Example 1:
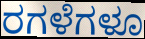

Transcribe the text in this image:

ರಗಳೆಗಳೂ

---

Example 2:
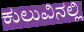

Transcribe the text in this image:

ಕುಲುವಿನಲ್ಲಿ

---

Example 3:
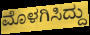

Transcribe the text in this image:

ಮೊಳಗಿಸಿದ್ದು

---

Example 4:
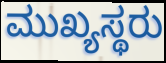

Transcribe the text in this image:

ಮುಖ್ಯಸ್ಥರು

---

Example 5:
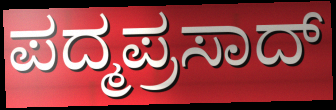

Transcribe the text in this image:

ಪದ್ಮಪ್ರಸಾದ್